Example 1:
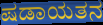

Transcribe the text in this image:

ಷಡಾಯತನ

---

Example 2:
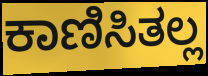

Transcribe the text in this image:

ಕಾಣಿಸಿತಲ್ಲ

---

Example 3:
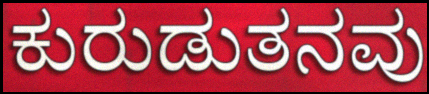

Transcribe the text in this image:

ಕುರುಡುತನವು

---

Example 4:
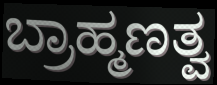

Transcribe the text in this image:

ಬ್ರಾಹ್ಮಣತ್ವ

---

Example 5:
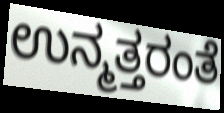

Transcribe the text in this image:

ಉನ್ಮತ್ತರಂತೆ